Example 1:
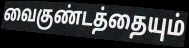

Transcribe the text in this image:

வைகுண்டத்தையும்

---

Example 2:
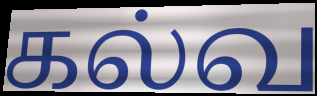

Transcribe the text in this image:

கல்வ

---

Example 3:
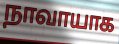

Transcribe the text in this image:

நாவாயாக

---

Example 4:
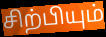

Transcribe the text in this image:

சிற்பியும்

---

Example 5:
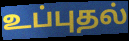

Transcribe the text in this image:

உப்புதல்